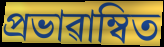
প্ৰভাৱাম্বিত